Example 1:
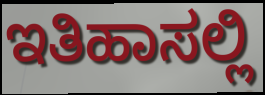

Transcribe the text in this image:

ಇತಿಹಾಸಲ್ಲಿ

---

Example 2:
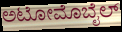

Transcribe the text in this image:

ಅಟೋಮೊಬೈಲ್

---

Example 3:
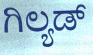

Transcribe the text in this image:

ಗಿಲ್ಯಡ್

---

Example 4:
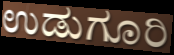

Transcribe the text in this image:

ಉಡುಗೂರಿ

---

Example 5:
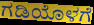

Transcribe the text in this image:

ಗಡಿಯೊಳಗೆ